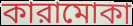
কারামোকা